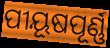
ପୀୟୂଷପୂର୍ଣ୍ଣ